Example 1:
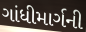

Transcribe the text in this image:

ગાંધીમાર્ગની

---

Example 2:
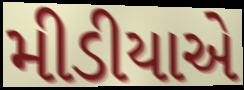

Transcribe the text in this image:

મીડીયાએ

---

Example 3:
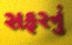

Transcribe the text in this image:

સફરનું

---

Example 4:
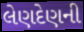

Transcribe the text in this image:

લેણદેણની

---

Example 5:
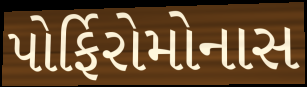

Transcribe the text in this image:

પોર્ફિરોમોનાસ